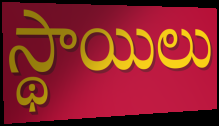
స్థాయిలు